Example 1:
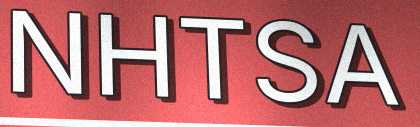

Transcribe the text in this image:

NHTSA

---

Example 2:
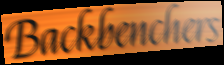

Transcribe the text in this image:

Backbenchers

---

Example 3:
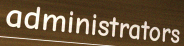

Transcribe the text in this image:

administrators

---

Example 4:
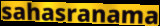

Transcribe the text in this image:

sahasranama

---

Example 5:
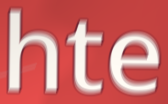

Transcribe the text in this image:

hte